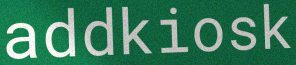
addkiosk